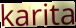
karita